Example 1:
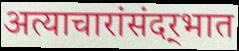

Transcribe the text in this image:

अत्याचारांसंदर्भात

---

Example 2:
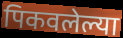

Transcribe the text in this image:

पिकवलेल्या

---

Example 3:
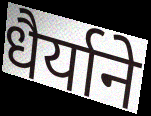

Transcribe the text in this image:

धैर्याने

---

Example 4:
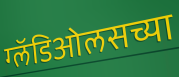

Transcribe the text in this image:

ग्लॅडिओलसच्या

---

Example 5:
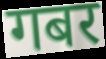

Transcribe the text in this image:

गबर